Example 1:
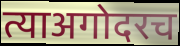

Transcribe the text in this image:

त्याअगोदरच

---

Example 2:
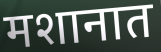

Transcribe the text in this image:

मशानात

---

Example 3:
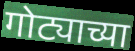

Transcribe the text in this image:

गोट्याच्या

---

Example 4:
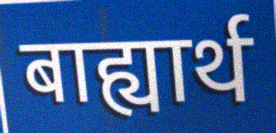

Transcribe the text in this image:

बाह्यार्थ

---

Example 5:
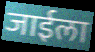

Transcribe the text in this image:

जाईला